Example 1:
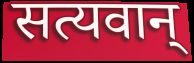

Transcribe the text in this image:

सत्यवान्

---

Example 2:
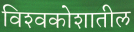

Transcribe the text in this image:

विश्वकोशातील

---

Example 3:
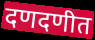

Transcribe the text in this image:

दणदणीत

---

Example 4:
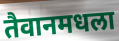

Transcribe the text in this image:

तैवानमधला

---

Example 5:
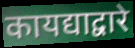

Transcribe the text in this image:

कायद्याद्वारे